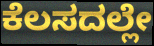
ಕೆಲಸದಲ್ಲೇ